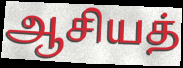
ஆசியத்